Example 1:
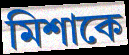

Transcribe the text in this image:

মিশাকে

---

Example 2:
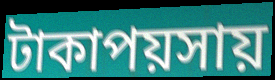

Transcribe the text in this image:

টাকাপয়সায়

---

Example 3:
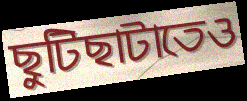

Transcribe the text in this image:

ছুটিছাটাতেও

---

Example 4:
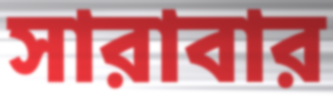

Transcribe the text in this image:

সারাবার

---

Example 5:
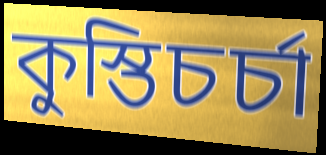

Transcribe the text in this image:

কুস্তিচর্চা